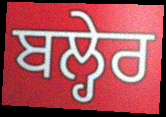
ਬਲ੍ਹੇਰ